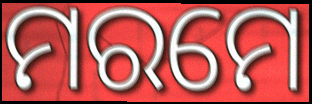
ମରମେ